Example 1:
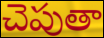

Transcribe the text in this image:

చెపుతా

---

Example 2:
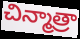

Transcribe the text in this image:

చిన్మాత్రా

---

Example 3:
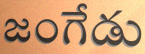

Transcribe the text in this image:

జంగేడు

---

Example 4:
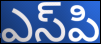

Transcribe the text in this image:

ఎస్‌పి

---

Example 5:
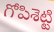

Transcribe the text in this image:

గోపిశెట్టి